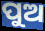
ପୁଅ